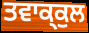
ਤਵਾਕ੍ਕੁਲ